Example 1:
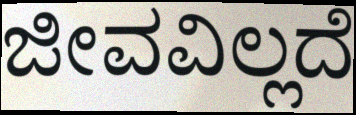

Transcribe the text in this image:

ಜೀವವಿಲ್ಲದೆ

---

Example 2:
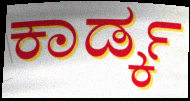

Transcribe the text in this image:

ಕಾರ್ಡ್ಕ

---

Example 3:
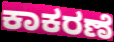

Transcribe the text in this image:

ಕಾಕರಣೆ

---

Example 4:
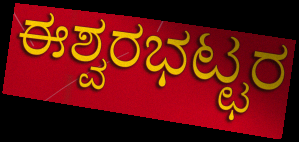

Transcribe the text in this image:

ಈಶ್ವರಭಟ್ಟರ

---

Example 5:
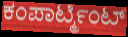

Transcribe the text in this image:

ಕಂಪಾರ್ಟ್ಮೆಂಟ್